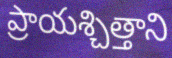
ప్రాయశ్చిత్తాని